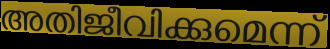
അതിജീവിക്കുമെന്ന്